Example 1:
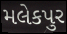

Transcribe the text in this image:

મલેકપુર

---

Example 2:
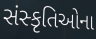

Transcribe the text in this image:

સંસ્કૃતિઓના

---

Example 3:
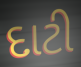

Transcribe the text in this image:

દાટી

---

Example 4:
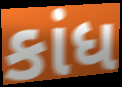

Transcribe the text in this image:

કાંધ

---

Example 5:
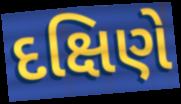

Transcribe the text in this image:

દક્ષિણે